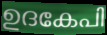
ഉദകേപി